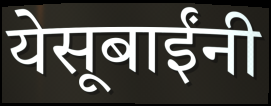
येसूबाईंनी